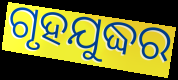
ଗୃହଯୁଦ୍ଧର